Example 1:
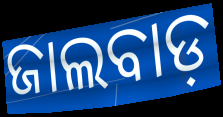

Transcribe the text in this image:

ଜାଲବାଡ଼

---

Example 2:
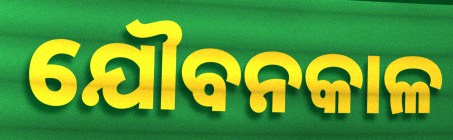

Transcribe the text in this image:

ଯୌବନକାଳ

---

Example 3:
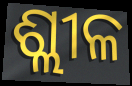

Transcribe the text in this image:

ଶ୍ଲୀଳ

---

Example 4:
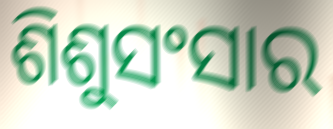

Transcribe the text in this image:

ଶିଶୁସଂସାର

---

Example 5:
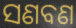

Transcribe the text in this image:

ସଣବଣ